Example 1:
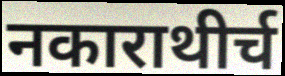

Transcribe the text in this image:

नकाराथीर्च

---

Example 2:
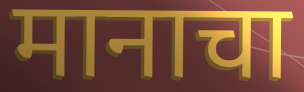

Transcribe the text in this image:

मानाचा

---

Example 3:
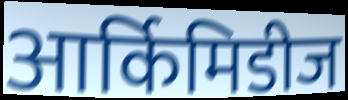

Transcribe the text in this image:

आर्किमिडीज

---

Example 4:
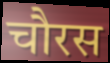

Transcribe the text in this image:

चौरस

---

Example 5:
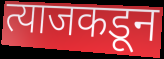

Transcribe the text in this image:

त्याजकडून